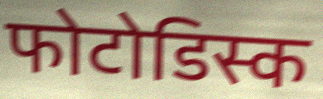
फोटोडिस्क